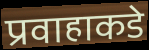
प्रवाहाकडे